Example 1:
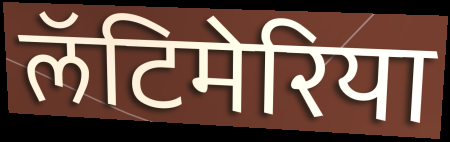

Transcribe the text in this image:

लॅटिमेरिया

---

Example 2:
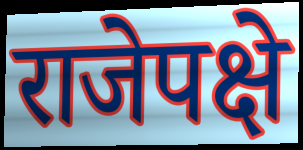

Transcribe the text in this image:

राजेपक्षे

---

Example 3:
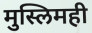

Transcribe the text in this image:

मुस्लिमही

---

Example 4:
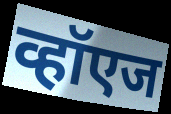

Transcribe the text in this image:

व्हॉएज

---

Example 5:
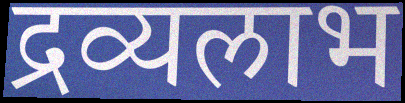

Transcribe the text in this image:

द्रव्यलाभ